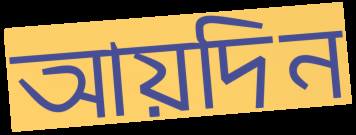
আয়দিন